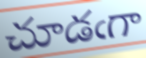
చూడఁగా